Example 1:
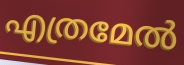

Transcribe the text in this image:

എത്രമേൽ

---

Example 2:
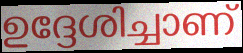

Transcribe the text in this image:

ഉദ്ദേശിച്ചാണ്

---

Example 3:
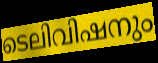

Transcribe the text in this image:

ടെലിവിഷനും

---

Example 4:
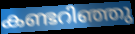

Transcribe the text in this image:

കണ്ടറിഞ്ഞു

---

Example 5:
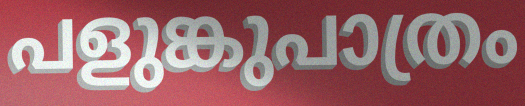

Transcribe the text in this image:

പളുങ്കുപാത്രം